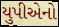
યુપીએનો